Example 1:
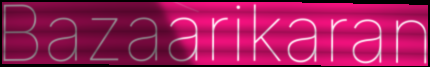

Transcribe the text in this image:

Bazaarikaran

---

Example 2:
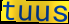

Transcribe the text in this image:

tuus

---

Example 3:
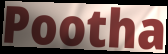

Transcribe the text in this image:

Pootha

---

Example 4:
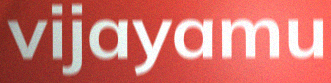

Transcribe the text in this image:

vijayamu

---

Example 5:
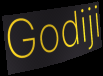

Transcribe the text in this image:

Godiji